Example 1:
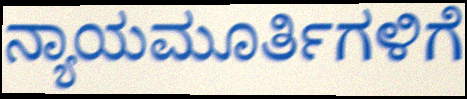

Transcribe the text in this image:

ನ್ಯಾಯಮೂರ್ತಿಗಳಿಗೆ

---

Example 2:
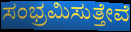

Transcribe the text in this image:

ಸಂಭ್ರಮಿಸುತ್ತೇವೆ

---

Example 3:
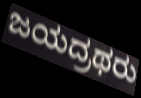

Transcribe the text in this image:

ಜಯದ್ರಥರು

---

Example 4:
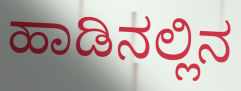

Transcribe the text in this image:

ಹಾಡಿನಲ್ಲಿನ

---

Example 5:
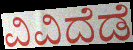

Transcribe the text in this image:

ವಿವಿದೆಡೆ